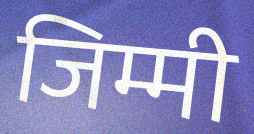
जिम्मी